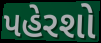
પહેરશો